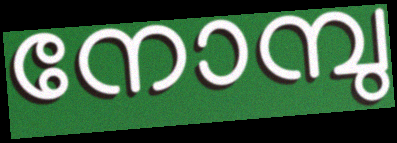
നോമ്പു